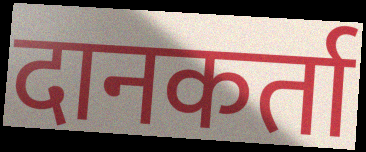
दानकर्ता